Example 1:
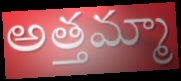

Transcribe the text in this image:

అత్తమ్మా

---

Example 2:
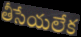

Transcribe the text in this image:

తీసేయలేక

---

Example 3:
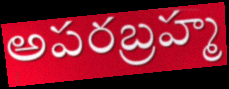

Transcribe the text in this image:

అపరబ్రహ్మ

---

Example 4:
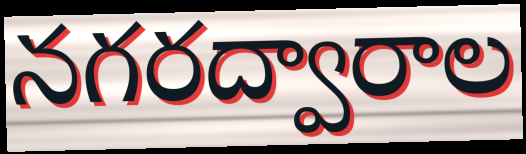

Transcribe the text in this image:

నగరద్వారాల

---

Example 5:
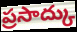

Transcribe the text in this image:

ప్రసాద్కు